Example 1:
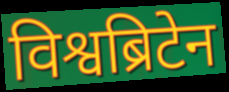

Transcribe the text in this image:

विश्वब्रिटेन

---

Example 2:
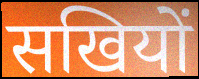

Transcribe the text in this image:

सखियों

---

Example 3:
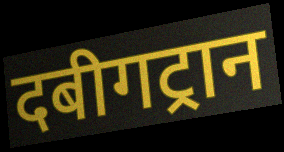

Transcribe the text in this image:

दबीगट्रान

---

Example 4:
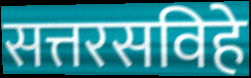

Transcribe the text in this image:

सत्तरसविहे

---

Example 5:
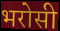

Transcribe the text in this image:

भरोसी